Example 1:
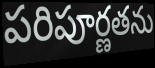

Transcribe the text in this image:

పరిపూర్ణతను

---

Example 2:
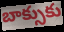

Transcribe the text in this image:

బాక్సుకు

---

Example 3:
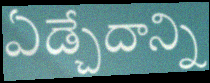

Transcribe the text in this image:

ఏడ్చేదాన్ని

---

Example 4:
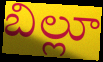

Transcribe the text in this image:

బిల్లూ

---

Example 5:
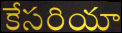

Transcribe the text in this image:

కేసరియా